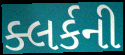
ક્લર્કની